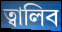
ত্বালিব